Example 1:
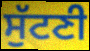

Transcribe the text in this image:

ਸੁੱਟਣੀ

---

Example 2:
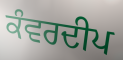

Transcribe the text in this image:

ਕੰਵਰਦੀਪ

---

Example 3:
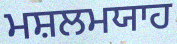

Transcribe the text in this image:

ਮਸ਼ਲਮਯਾਹ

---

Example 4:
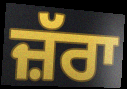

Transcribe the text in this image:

ਜ਼ੱਰਾ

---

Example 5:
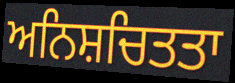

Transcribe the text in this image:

ਅਨਿਸ਼ਚਿਤਤਾ